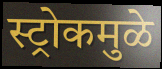
स्ट्रोकमुळे